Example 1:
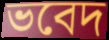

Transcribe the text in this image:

ভবেদ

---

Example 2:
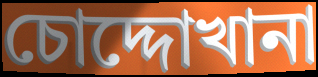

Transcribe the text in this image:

চোদ্দোখানা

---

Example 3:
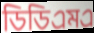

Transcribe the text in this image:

ডিডিএমএ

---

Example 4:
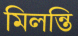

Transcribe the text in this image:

মিলন্তি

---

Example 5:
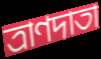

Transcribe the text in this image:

ত্রাণদাতা